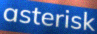
asterisk